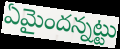
ఏమైందన్నట్టు